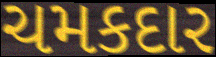
ચમકદાર